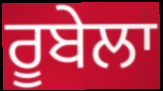
ਰੂਬੇਲਾ